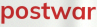
postwar